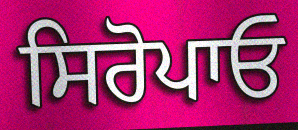
ਸਿਰੋਪਾਓ